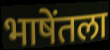
भाषेंतला